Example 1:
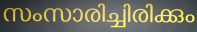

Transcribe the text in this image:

സംസാരിച്ചിരിക്കും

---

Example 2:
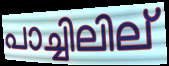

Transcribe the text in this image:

പാച്ചിലില്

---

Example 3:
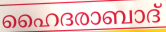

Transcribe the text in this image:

ഹൈദരാബാദ്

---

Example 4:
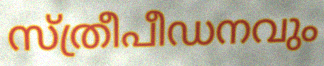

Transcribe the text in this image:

സ്ത്രീപീഡനവും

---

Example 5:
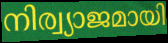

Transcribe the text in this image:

നിര്വ്യാജമായി